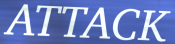
ATTACK